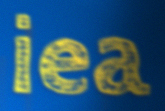
iea